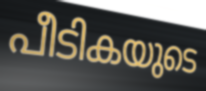
പീടികയുടെ